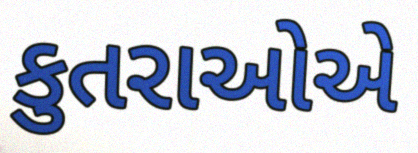
કુતરાઓએ